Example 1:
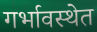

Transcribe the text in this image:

गर्भावस्थेत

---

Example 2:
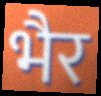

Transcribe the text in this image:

भैर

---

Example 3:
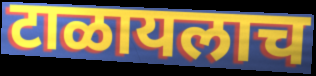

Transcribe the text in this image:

टाळायलाच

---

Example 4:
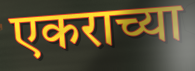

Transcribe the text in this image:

एकराच्या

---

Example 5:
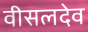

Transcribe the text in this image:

वीसलदेव